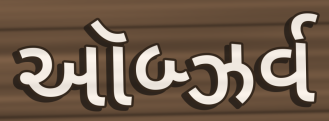
ઑબ્ઝર્વ